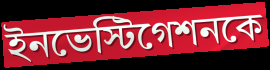
ইনভেস্টিগেশনকে